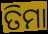
ତିମା